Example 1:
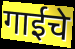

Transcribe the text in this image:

गाईचे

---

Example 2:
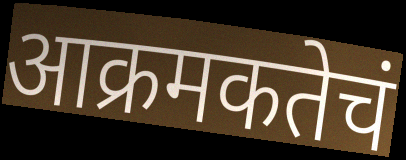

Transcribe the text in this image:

आक्रमकतेचं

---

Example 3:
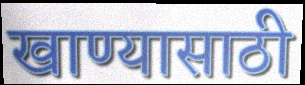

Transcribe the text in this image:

खाण्यासाठी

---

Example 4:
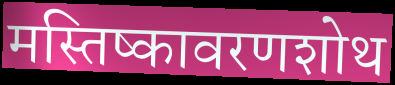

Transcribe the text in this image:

मस्तिष्कावरणशोथ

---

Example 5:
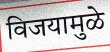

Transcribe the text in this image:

विजयामुळे